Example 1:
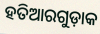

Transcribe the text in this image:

ହତିଆରଗୁଡ଼ାକ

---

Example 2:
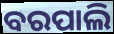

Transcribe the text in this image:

ବରପାଲି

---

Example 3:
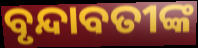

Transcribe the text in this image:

ବୃନ୍ଦାବତୀଙ୍କ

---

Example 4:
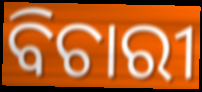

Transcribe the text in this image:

ବିଚାରୀ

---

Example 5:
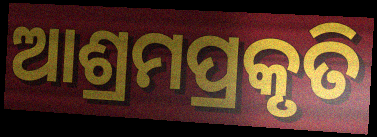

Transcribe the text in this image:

ଆଶ୍ରମପ୍ରକୃତି